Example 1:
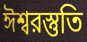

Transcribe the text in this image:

ঈশ্বরস্তুতি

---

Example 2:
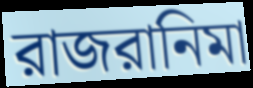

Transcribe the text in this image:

রাজরানিমা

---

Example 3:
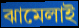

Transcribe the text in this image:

ঝামেলাই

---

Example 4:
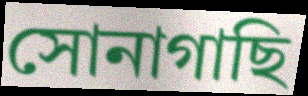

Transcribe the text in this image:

সোনাগাছি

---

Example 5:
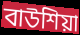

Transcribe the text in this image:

বাউশিয়া